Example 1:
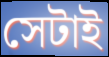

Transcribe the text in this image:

সেটাই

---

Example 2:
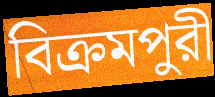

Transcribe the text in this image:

বিক্রমপুরী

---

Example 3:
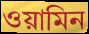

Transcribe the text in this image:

ওয়ামিন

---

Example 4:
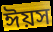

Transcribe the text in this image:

ঈয়স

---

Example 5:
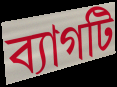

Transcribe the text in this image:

ব্যাগটি